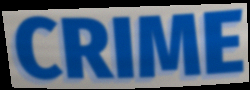
CRIME